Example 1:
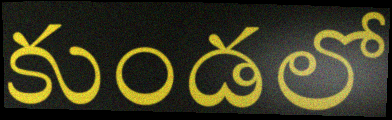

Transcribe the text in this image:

కుండలో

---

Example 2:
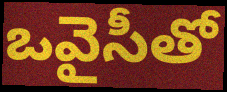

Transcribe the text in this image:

ఒవైసీతో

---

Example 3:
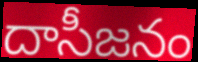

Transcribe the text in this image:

దాసీజనం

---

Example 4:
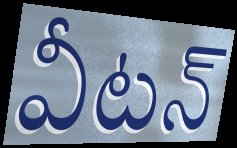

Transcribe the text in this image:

వీటన్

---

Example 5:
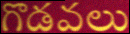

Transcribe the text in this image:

గొడవలు